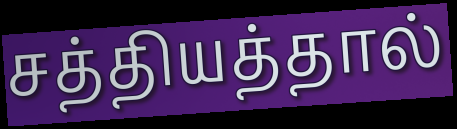
சத்தியத்தால்